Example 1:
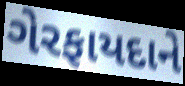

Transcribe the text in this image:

ગેરફાયદાને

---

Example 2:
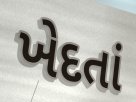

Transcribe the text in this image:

ખેદતાં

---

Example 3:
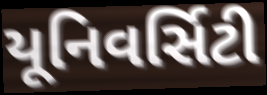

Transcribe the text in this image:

યૂનિવર્સિટી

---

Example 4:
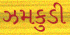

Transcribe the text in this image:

ઝમકુડી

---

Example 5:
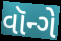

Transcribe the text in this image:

વૉન્ગે